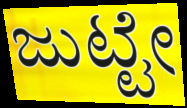
ಜುಟ್ಟೇ